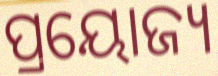
ପ୍ରୟୋଜ୍ୟ